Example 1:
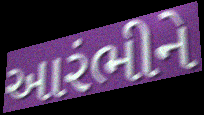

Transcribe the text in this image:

આરંભીને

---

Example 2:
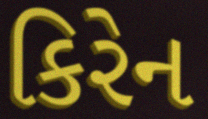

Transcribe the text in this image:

કિરેન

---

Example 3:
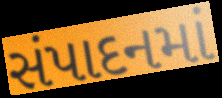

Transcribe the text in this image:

સંપાદનમાં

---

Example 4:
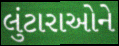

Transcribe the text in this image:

લુંટારાઓને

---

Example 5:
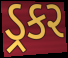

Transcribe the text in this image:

ડ્રકર